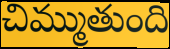
చిమ్ముతుంది